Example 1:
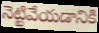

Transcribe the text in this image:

నెట్టివేయడానికి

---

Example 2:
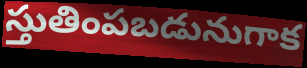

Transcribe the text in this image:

స్తుతింపబడునుగాక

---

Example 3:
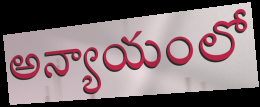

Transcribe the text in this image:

అన్యాయంలో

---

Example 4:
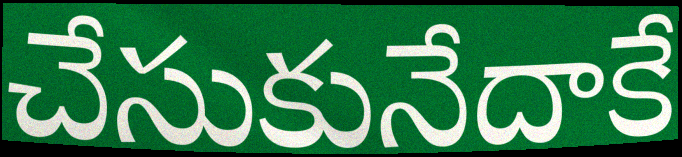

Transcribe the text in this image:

చేసుకునేదాకే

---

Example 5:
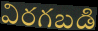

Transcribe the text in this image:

విరగబడి